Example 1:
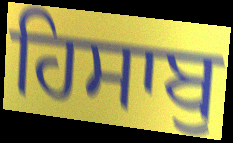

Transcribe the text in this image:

ਹਿਸਾਬੁ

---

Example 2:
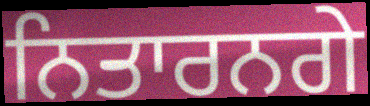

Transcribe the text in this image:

ਨਿਤਾਰਨਗੇ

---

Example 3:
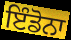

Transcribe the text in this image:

ਇੰਡੋਨਾ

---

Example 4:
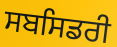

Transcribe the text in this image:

ਸਬਸਿਡਰੀ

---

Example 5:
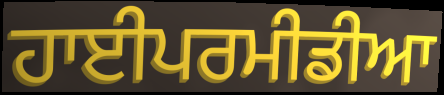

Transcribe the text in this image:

ਹਾਈਪਰਮੀਡੀਆ